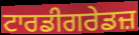
ਟਾਰਡੀਗਰੇਡਜ਼